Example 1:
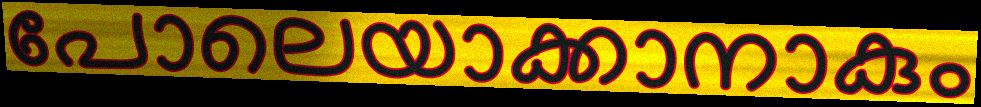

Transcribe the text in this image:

പോലെയാക്കാനാകും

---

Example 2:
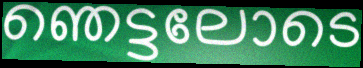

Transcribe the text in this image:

ഞെട്ടലോടെ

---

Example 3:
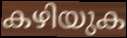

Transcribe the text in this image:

കഴിയുക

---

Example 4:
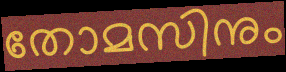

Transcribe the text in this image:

തോമസിനും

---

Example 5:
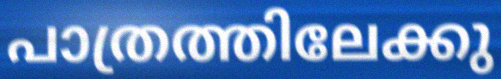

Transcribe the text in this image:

പാത്രത്തിലേക്കു